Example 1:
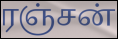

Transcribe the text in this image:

ரஞ்சன்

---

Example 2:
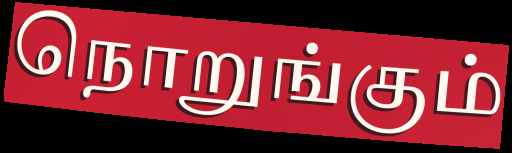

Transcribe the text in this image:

நொறுங்கும்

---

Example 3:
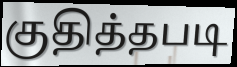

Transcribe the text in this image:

குதித்தபடி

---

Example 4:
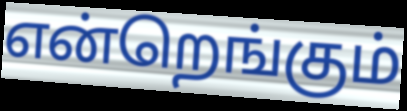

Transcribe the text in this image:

என்றெங்கும்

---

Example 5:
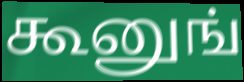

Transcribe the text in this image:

கூனுங்